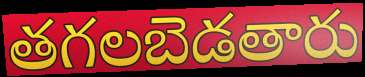
తగలబెడతారు